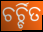
ଚର୍ଚ୍ଚିତ